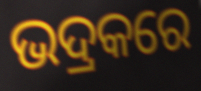
ଭଦ୍ରକରେ